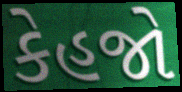
કેહજો